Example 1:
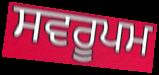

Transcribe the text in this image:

ਸਵਰੂਪਮ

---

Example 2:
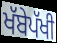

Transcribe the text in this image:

ਖੱਬੇਪੱਖੀ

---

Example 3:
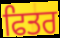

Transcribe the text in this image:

ਫਿਤਰ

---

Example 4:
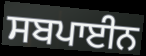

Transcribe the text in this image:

ਸਬਪਾਈਨ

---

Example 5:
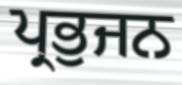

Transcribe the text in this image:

ਪ੍ਰਭੁਜਨ